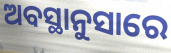
ଅବସ୍ଥାନୁସାରେ